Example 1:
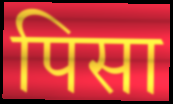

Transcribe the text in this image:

पिसा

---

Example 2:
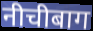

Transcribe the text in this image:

नीचीबाग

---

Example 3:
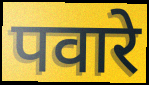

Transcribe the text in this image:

पवारे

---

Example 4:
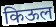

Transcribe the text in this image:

किऊल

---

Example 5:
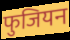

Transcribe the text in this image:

फुजियन